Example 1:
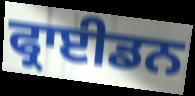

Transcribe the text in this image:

ਫ੍ਰਾਈਡਨ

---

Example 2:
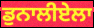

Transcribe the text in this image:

ਡੁਨਾਲੀਏਲਾ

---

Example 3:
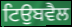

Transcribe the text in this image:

ਟਿਉਬਵੈਲ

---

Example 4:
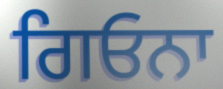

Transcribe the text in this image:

ਗਿਓਨਾ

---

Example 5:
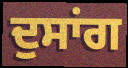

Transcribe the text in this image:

ਦੁਸਾਂਗ